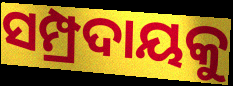
ସମ୍ପ୍ରଦାୟକୁ